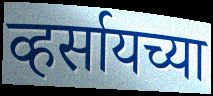
व्हर्सायच्या